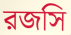
রজসি